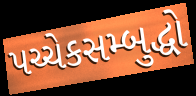
પચ્ચેકસમ્બુદ્ધો